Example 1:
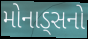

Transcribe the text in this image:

મોનાડ્સનો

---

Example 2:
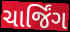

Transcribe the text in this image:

ચાર્જિંગ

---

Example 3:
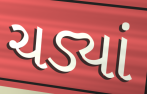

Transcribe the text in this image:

ચડ્યાં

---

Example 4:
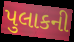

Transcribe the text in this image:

પુલાકની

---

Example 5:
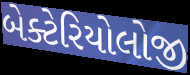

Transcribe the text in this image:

બેક્ટેરિયોલોજી